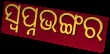
ସ୍ୱପ୍ନଭଙ୍ଗର